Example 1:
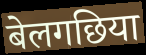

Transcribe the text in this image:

बेलगछिया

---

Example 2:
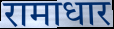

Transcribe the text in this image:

रामाधार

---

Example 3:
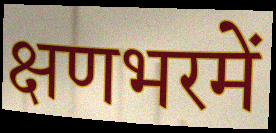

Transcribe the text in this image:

क्षणभरमें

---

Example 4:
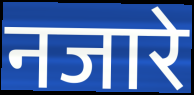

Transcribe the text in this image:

नजारे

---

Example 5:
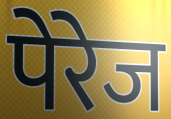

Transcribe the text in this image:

पेरेज